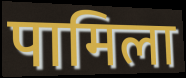
पामिला